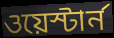
ওয়েস্টার্ন